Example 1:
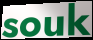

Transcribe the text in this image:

souk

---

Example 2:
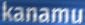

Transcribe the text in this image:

kanamu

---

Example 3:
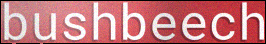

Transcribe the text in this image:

bushbeech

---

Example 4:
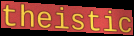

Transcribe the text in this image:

theistic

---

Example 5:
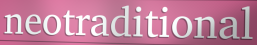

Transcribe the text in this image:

neotraditional